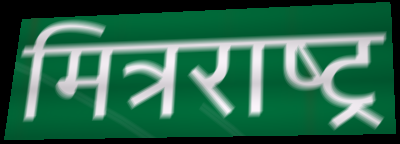
मित्रराष्ट्र